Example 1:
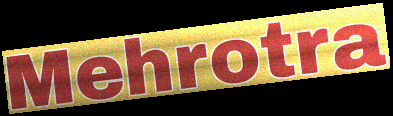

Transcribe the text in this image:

Mehrotra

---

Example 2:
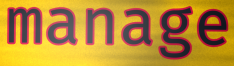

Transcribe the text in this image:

manage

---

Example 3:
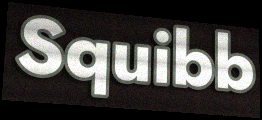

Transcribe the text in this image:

Squibb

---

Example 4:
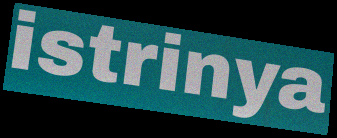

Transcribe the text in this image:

istrinya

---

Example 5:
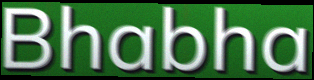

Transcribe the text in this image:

Bhabha